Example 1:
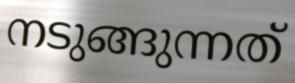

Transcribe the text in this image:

നടുങ്ങുന്നത്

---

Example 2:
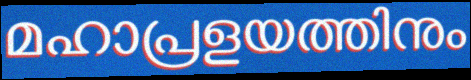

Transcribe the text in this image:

മഹാപ്രളയത്തിനും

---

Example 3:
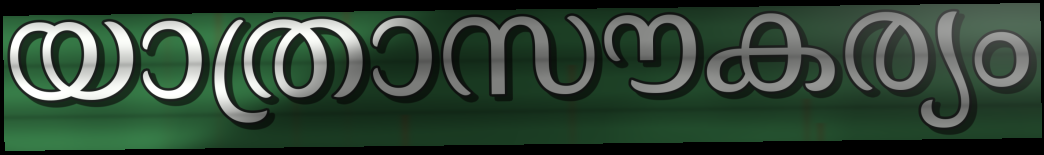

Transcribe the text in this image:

യാത്രാസൗകര്യം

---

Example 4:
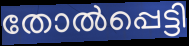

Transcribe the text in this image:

തോൽപ്പെട്ടി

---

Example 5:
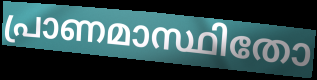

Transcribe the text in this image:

പ്രാണമാസ്ഥിതോ